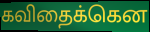
கவிதைக்கென